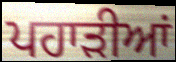
ਪਹਾਡ਼ੀਆਂ